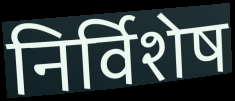
निर्विशेष